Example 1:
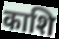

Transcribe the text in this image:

काशि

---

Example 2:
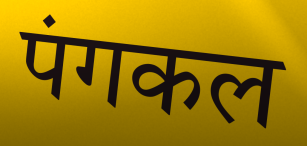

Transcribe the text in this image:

पंगकल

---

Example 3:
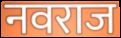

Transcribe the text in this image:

नवराज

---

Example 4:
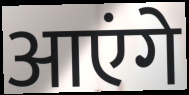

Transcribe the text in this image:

आएंगे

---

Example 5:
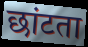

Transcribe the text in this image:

छांटता